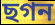
ছগন